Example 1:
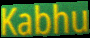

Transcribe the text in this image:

Kabhu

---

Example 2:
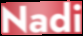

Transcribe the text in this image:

Nadi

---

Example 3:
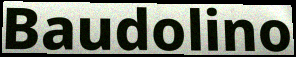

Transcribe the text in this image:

Baudolino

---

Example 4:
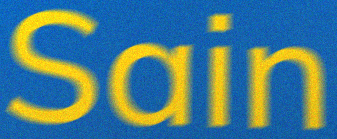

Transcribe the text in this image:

Sain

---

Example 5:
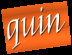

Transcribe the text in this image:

quin